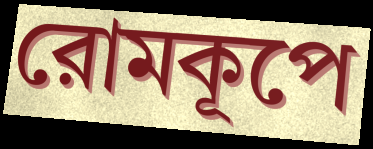
রোমকূপে